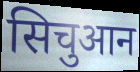
सिचुआन